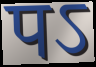
पऽ